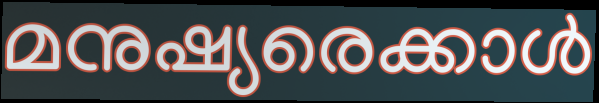
മനുഷ്യരെക്കാൾ